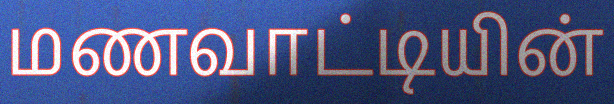
மணவாட்டியின்